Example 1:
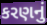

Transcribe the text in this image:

કરણનું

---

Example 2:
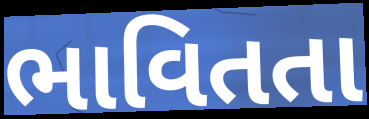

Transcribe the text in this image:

ભાવિતતા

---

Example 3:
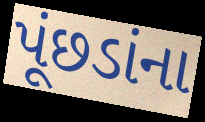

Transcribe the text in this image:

પૂંછડાંના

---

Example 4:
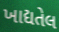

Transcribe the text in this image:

ખાદ્યતેલ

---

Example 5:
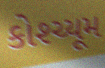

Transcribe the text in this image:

કોશ્ચ્યૂમ